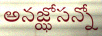
అనజ్ఝోసన్నో